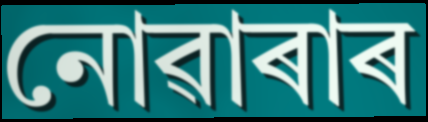
নোৱাৰাৰ